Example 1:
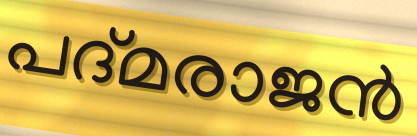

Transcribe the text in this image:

പദ്മരാജൻ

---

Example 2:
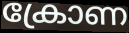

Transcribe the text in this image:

ക്രോണ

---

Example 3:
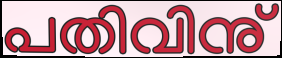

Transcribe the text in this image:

പതിവിനു്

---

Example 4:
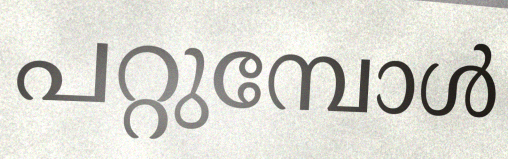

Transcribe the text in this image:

പറ്റുമ്പോൾ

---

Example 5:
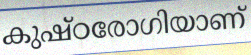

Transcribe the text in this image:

കുഷ്ഠരോഗിയാണ്